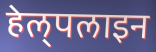
हेल्पलाइन